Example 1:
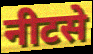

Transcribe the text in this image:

नीटसे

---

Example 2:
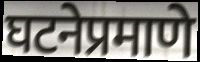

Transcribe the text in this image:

घटनेप्रमाणे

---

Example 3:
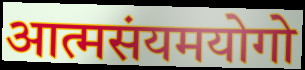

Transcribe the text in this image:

आत्मसंयमयोगो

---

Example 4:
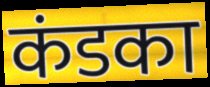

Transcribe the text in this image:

कंडका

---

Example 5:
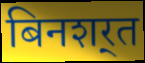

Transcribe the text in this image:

बिनशर्त